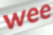
wee